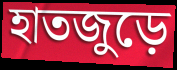
হাতজুড়ে